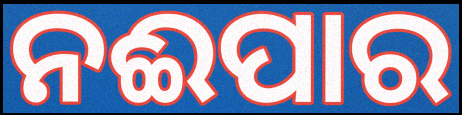
ନଈପାର